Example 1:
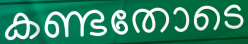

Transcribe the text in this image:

കണ്ടതോടെ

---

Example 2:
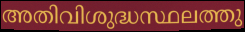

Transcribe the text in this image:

അതിവിശുദ്ധസ്ഥലത്തു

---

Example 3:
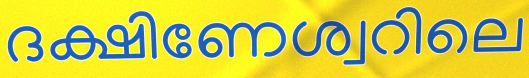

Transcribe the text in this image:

ദക്ഷിണേശ്വറിലെ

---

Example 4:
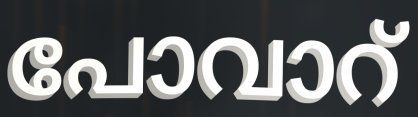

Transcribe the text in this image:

പോവാറ്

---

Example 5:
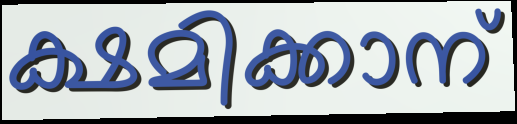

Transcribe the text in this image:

ക്ഷമിക്കാന്